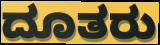
ದೂತರು